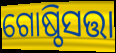
ଗୋଷ୍ଠିସତ୍ତା